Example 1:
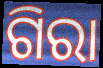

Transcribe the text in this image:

ଗିରା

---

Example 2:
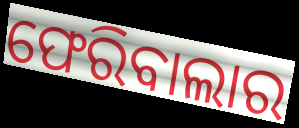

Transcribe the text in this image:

ଫେରିବାଲାର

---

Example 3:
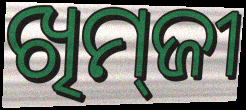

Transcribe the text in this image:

ଖିମ୍‌ଜୀ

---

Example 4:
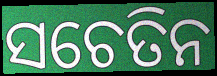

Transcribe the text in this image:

ସଚେତିନ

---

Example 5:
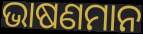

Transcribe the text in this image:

ଭାଷଣମାନ